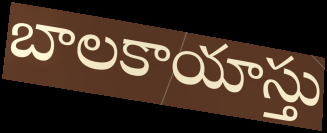
బాలకాయాస్తు